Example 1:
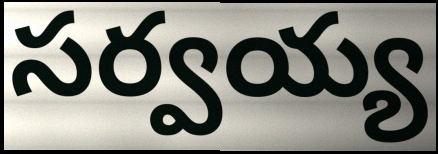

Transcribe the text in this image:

సర్వయ్య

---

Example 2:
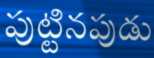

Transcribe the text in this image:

పుట్టినపుడు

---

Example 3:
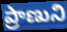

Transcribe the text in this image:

ప్రాణుని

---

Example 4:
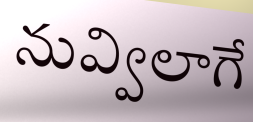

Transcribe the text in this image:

నువ్విలాగే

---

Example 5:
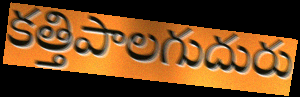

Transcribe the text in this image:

కత్తిపాలగుదురు